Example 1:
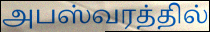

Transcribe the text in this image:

அபஸ்வரத்தில்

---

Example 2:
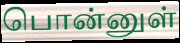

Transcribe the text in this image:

பொன்னுள்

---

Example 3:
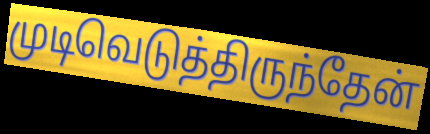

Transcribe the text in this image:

முடிவெடுத்திருந்தேன்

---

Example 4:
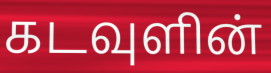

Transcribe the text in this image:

கடவுளின்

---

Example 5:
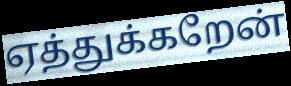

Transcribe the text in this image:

ஏத்துக்கறேன்